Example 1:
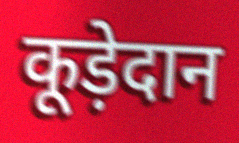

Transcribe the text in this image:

कूड़ेदान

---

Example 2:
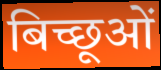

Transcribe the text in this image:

बिच्छूओं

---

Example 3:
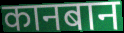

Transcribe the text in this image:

कानबान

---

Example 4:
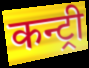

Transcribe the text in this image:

कन्ट्री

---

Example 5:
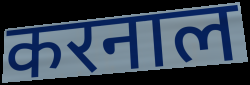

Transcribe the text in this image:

करनाल